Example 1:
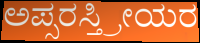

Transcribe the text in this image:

ಅಪ್ಸರಸ್ತ್ರೀಯರ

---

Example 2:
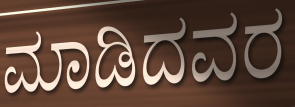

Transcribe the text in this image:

ಮಾಡಿದವರ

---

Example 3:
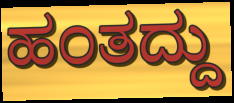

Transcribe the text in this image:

ಹಂತದ್ದು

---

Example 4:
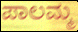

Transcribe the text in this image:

ಪಾಲಮ್ಮ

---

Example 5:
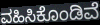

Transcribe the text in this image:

ವಹಿಸಿಕೊಂಡಿವೆ